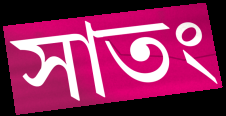
সাতং